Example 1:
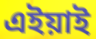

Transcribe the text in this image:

এইয়াই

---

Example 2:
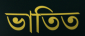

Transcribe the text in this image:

ভাতিত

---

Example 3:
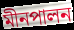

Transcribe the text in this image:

মীনপালন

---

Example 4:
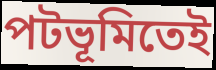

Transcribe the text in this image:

পটভূমিতেই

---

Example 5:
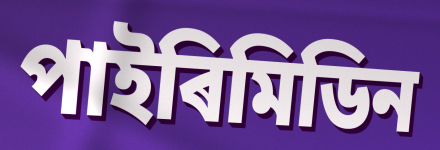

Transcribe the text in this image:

পাইৰিমিডিন